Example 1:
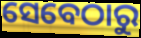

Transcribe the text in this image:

ସେବେଠାରୁ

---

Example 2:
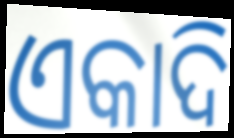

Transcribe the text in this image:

ଏକାଦି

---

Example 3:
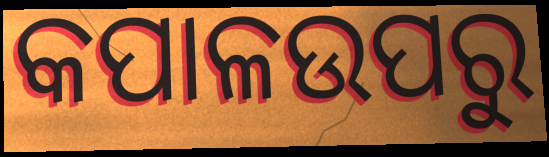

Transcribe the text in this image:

କପାଳଉପରୁ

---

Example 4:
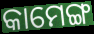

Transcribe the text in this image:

କାମେଙ୍ଗ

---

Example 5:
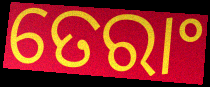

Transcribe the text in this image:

ତେରାଂ